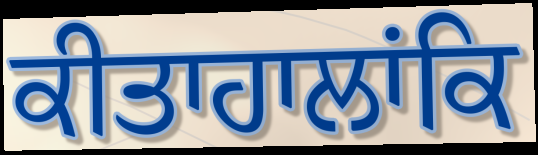
ਕੀਤਾਹਾਲਾਂਕਿ